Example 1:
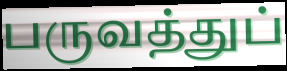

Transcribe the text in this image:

பருவத்துப்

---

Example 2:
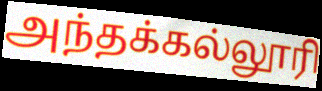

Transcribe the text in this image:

அந்தக்கல்லூரி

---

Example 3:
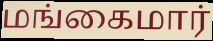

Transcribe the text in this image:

மங்கைமார்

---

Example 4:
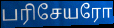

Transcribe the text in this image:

பரிசேயரோ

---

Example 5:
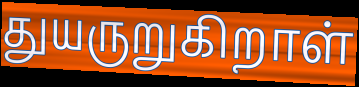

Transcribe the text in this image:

துயருறுகிறாள்